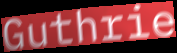
Guthrie